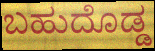
ಬಹುದೊಡ್ಡ